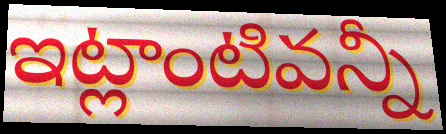
ఇట్లాంటివన్నీ